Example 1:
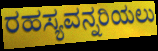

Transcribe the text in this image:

ರಹಸ್ಯವನ್ನರಿಯಲು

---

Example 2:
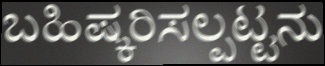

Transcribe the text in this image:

ಬಹಿಷ್ಕರಿಸಲ್ಪಟ್ಟನು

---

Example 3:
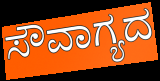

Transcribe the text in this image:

ಸೌವಾಗ್ಯದ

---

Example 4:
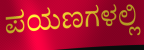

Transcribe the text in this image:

ಪಯಣಗಳಲ್ಲಿ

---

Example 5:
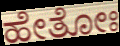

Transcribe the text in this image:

ಹೇತೋಃ